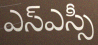
ఎస్ఎస్సీ